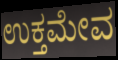
ಉಕ್ತಮೇವ